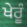
ਖੇਰੂੰ